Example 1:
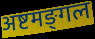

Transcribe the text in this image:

अष्टमङ्गल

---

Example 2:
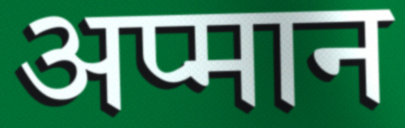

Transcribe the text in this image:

अप्मान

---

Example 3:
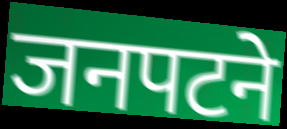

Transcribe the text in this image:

जनपटने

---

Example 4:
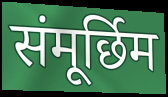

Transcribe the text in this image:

संमूर्छिम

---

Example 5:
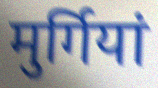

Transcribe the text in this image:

मुर्गियां